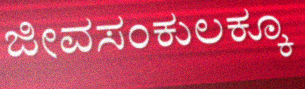
ಜೀವಸಂಕುಲಕ್ಕೂ